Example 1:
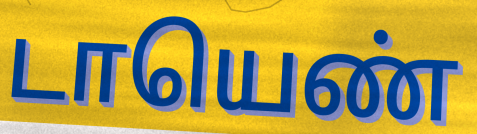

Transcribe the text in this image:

டாயெண்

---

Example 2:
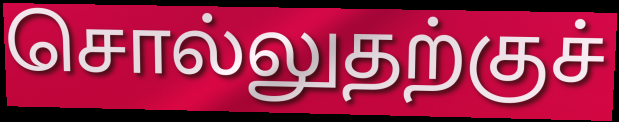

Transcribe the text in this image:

சொல்லுதற்குச்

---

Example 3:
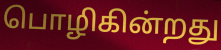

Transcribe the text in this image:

பொழிகின்றது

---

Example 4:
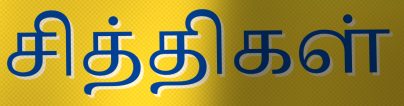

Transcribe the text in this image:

சித்திகள்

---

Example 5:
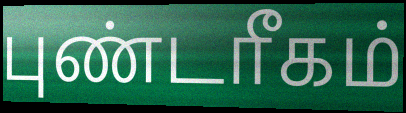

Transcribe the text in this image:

புண்டரீகம்